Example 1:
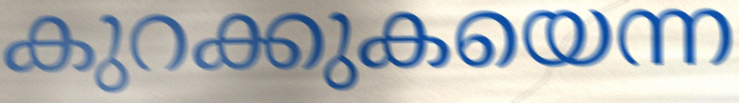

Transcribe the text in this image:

കുറക്കുകയെന്ന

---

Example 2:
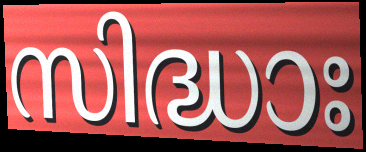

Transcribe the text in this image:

സിദ്ധാഃ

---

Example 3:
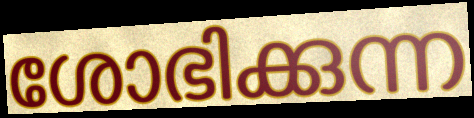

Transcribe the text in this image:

ശോഭിക്കുന്ന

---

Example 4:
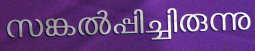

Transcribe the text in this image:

സങ്കൽപ്പിച്ചിരുന്നു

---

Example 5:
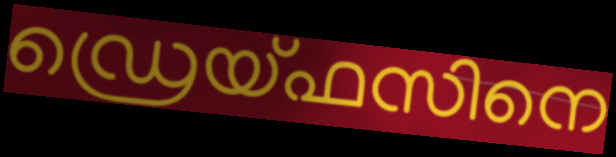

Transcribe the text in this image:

ഡ്രെയ്ഫസിനെ